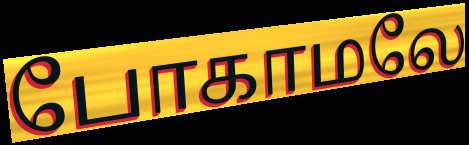
போகாமலே